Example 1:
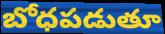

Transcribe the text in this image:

బోధపడుతూ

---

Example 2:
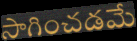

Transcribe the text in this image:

సాగించడమే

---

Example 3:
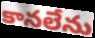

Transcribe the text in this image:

కానలేను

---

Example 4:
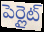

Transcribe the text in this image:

పెర్లైట్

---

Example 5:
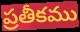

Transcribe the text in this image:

ప్రతీకము